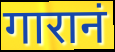
गारानं